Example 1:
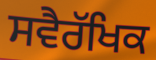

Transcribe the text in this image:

ਸਵੈਰੱਖਿਕ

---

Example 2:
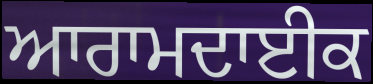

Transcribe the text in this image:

ਆਰਾਮਦਾਈਕ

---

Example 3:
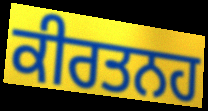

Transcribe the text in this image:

ਕੀਰਤਨਹ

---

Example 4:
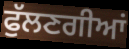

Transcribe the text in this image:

ਫੁੱਲਣਗੀਆਂ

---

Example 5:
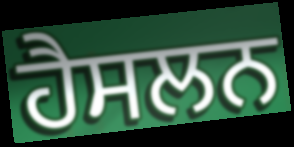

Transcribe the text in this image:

ਹੈਸਲਨ